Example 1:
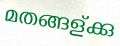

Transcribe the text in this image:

മതങ്ങള്ക്കു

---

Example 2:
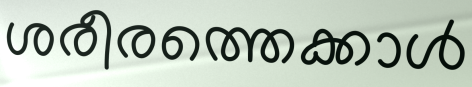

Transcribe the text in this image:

ശരീരത്തെക്കാൾ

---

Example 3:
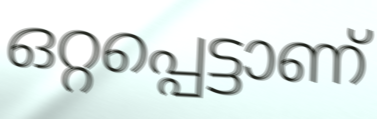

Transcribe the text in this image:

ഒറ്റപ്പെട്ടാണ്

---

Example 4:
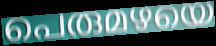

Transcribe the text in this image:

പെരുമഴയെ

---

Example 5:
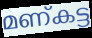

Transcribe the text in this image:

മണ്കട്ട